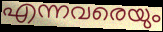
എന്നവരെയും